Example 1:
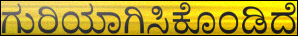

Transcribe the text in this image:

ಗುರಿಯಾಗಿಸಿಕೊಂಡಿದೆ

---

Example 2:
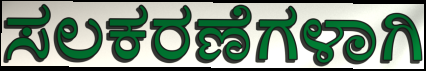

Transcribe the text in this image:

ಸಲಕರಣೆಗಳಾಗಿ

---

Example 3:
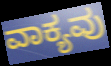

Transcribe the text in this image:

ವಾಕ್ಯವು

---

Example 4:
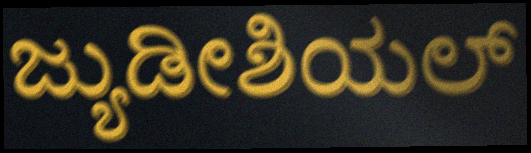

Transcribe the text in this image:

ಜ್ಯುಡೀಶಿಯಲ್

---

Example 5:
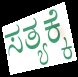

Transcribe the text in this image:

ಸತ್ಯಕ್ಕೆ